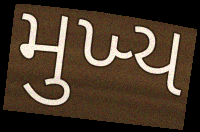
મુખ્‍ય